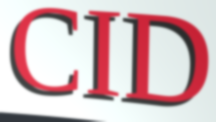
CID